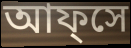
আফ্সে